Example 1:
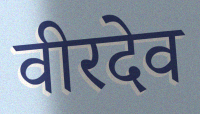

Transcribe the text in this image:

वीरदेव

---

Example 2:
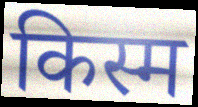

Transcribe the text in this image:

किस्म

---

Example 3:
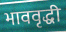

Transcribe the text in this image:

भाववृद्धी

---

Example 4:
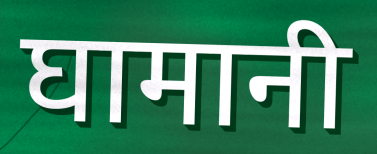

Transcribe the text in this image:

घामानी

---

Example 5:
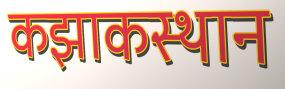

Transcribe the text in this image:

कझाकस्थान